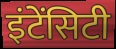
इंटेंसिटी